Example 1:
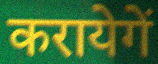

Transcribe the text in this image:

करायेगें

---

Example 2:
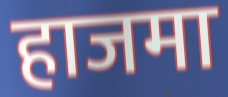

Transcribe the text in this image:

हाजमा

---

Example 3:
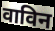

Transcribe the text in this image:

वाविन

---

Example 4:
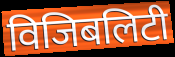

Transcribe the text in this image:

विजिबलिटी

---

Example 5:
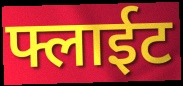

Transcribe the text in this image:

फ्लाईट